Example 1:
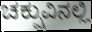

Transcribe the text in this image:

ಚಕ್ಷುವಿನಲ್ಲಿ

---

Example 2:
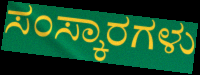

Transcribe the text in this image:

ಸಂಸ್ಕಾರಗಳು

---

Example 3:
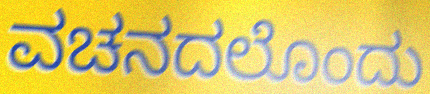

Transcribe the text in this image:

ವಚನದಲೊಂದು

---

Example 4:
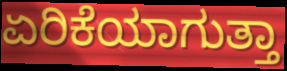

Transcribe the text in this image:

ಏರಿಕೆಯಾಗುತ್ತಾ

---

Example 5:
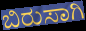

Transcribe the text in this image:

ಬಿರುಸಾಗಿ